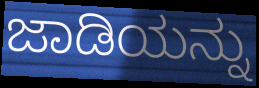
ಜಾಡಿಯನ್ನು